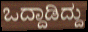
ಒದ್ದಾಡಿದ್ದು